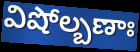
విషోల్బణాః